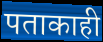
पताकाही